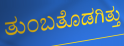
ತುಂಬತೊಡಗಿತ್ತು